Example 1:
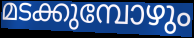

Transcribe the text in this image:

മടക്കുമ്പോഴും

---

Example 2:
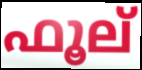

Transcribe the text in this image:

ഫൂല്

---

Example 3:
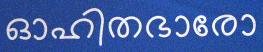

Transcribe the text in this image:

ഓഹിതഭാരോ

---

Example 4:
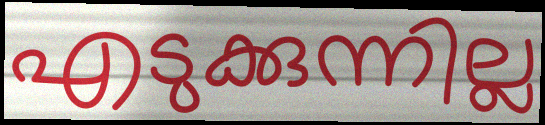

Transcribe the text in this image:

എടുക്കുന്നില്ല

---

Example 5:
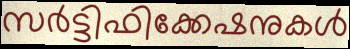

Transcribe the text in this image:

സർട്ടിഫിക്കേഷനുകൾ